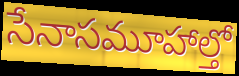
సేనాసమూహాల్తో